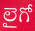
లైగో